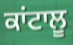
ਕਾਂਟਾਲੂ